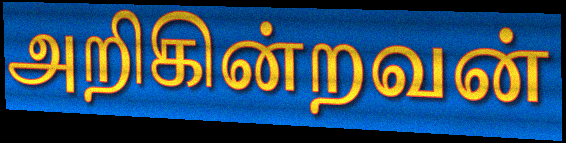
அறிகின்றவன்